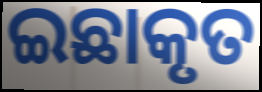
ଇଛାକୃତ